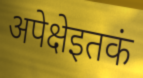
अपेक्षेइतकं